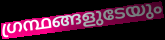
ഗ്രന്ഥങ്ങളുടേയും